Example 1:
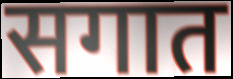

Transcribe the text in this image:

सगात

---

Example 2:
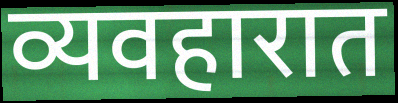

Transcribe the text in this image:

व्यवहारात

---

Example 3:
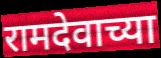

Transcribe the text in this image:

रामदेवाच्या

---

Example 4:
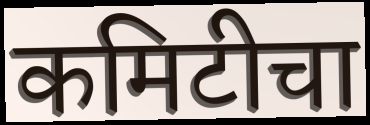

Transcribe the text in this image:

कमिटीचा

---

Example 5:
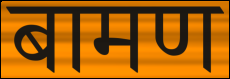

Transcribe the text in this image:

बामण